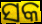
ସକ